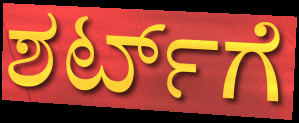
ಶರ್ಟ್‌ಗೆ